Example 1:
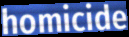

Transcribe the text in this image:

homicide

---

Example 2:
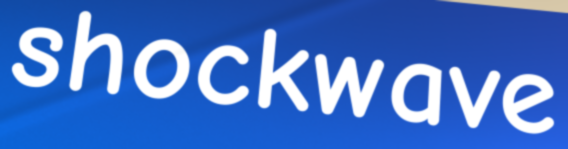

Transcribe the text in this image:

shockwave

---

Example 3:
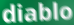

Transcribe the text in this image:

diablo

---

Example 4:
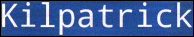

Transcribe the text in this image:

Kilpatrick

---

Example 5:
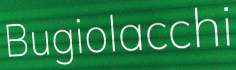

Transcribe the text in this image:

Bugiolacchi